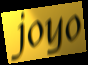
joyo